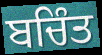
ਬਚਿੰਤ